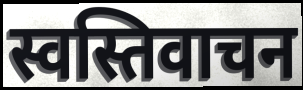
स्वस्तिवाचन